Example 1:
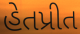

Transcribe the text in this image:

હેતપ્રીત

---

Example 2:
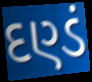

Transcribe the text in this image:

દણ્ડં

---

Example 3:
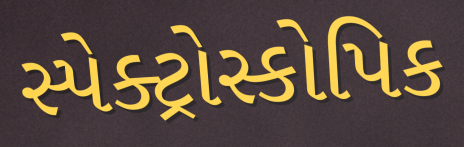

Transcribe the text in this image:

સ્પેક્ટ્રોસ્કોપિક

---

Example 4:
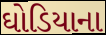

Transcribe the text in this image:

ઘોડિયાના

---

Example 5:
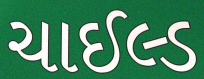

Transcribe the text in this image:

ચાઈલ્ડ